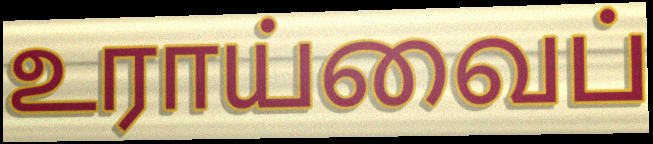
உராய்வைப்